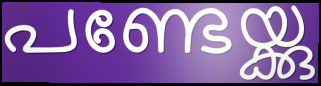
പണ്ടേയ്ക്കു